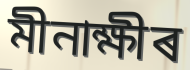
মীনাক্ষীৰ